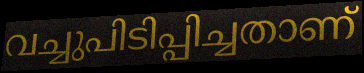
വച്ചുപിടിപ്പിച്ചതാണ്